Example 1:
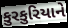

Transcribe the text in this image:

કુરકુરિયાને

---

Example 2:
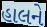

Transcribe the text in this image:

હાલને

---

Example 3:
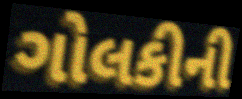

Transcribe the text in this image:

ગોલકીની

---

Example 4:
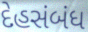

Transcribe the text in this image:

દેહસંબંધ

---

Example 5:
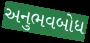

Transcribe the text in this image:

અનુભવબોધ